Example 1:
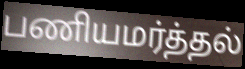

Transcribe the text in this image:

பணியமர்த்தல்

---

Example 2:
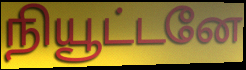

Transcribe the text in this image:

நியூட்டனே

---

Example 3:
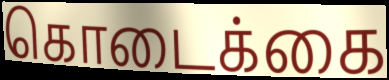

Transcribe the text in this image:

கொடைக்கை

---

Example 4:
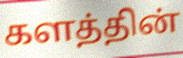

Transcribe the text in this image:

களத்தின்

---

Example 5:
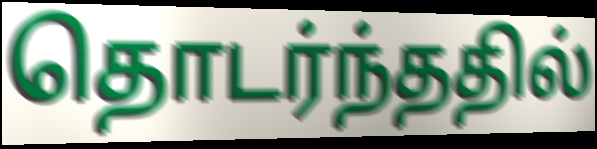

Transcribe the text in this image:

தொடர்ந்ததில்